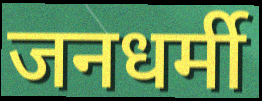
जनधर्मी